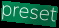
preset